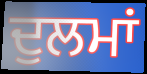
ਦੁਲਮਾਂ